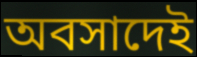
অবসাদেই